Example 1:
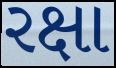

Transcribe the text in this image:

રક્ષા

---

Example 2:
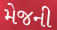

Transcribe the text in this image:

મેજની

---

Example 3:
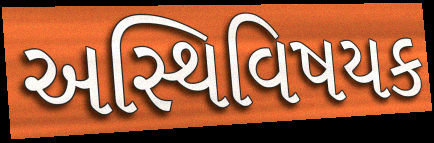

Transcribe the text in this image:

અસ્થિવિષયક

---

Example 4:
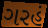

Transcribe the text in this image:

ગરહં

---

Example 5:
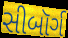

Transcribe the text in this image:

સીબૉર્ગ